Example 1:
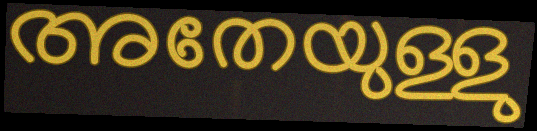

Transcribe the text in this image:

അതേയുള്ളു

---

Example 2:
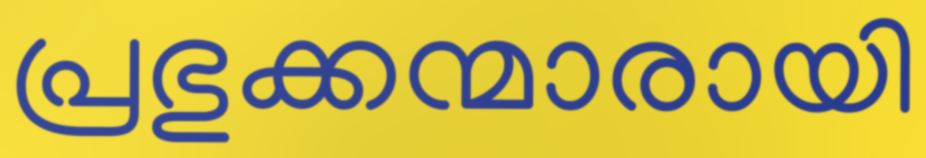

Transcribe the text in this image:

പ്രഭുക്കന്മാരായി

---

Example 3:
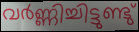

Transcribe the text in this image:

വർണ്ണിച്ചിട്ടുണ്ടു്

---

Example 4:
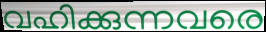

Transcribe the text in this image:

വഹിക്കുന്നവരെ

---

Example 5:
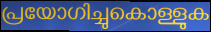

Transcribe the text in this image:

പ്രയോഗിച്ചുകൊള്ളുക